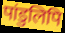
पांडुलिपि